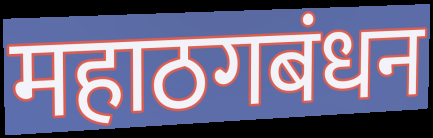
महाठगबंधन